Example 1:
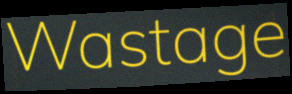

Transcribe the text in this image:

Wastage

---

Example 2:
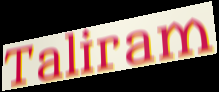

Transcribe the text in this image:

Taliram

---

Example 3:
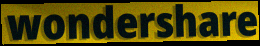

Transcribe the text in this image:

wondershare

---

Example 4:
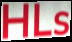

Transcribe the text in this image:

HLs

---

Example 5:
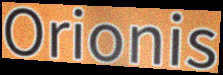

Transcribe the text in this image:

Orionis